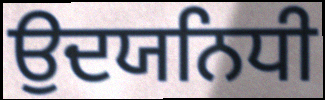
ਉਦਯਨਿਧੀ